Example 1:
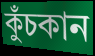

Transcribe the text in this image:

কুঁচকান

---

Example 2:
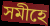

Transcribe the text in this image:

সমীহে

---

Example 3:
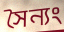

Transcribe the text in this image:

সৈন্যং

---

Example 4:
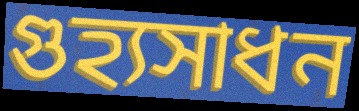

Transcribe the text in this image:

গুহ্যসাধন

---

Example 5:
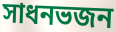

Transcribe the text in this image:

সাধনভজন